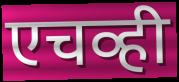
एचव्ही